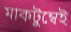
মাকটুম্বেই